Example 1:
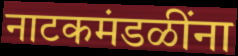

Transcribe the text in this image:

नाटकमंडळींना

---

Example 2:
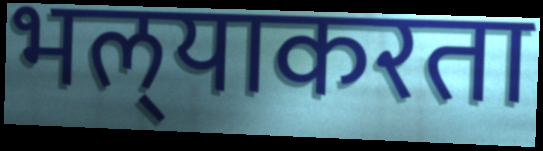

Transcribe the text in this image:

भल्याकरता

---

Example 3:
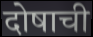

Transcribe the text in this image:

दोषाची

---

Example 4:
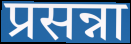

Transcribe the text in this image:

प्रसन्ना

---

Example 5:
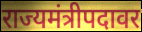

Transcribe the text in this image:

राज्यमंत्रीपदावर